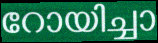
റോയിച്ചാ